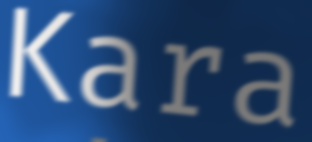
Kara